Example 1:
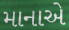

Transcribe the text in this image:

માનાએ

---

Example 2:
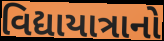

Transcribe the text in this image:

વિદ્યાયાત્રાનો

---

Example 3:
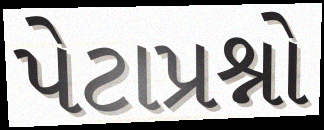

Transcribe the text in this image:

પેટાપ્રશ્નો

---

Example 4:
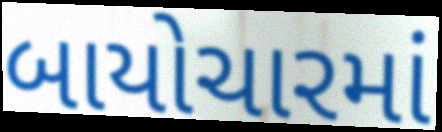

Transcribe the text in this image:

બાયોચારમાં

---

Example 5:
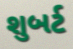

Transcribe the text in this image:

શુબર્ટ